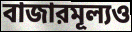
বাজারমূল্যও